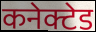
कनेक्टेड